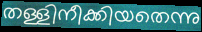
തള്ളിനീക്കിയതെന്നു